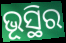
ଭୂସ୍ଥିର